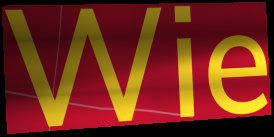
Wie